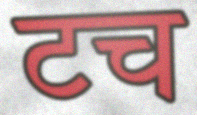
टच